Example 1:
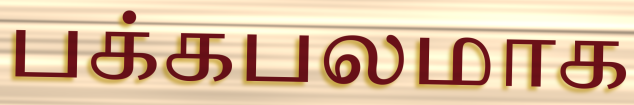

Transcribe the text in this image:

பக்கபலமாக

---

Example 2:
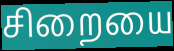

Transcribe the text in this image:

சிறையை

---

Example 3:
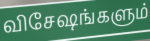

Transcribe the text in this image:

விசேஷங்களும்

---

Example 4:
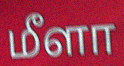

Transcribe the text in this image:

மீளா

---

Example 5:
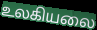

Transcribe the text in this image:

உலகியலை